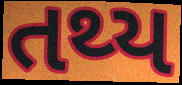
તથ્ય